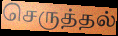
செருத்தல்